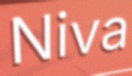
Niva